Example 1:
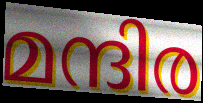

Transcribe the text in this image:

മന്ദിര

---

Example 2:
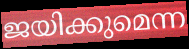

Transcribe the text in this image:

ജയിക്കുമെന്ന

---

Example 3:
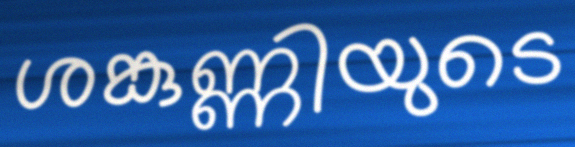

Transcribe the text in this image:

ശങ്കുണ്ണിയുടെ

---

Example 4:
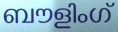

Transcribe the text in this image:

ബൗളിംഗ്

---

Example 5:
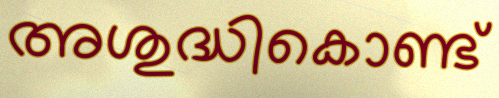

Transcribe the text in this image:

അശുദ്ധികൊണ്ട്